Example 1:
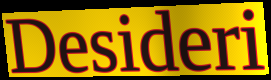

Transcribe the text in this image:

Desideri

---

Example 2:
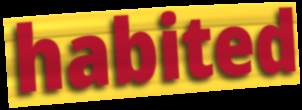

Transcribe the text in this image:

habited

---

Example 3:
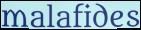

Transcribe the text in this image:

malafides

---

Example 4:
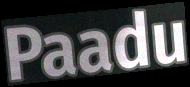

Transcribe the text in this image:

Paadu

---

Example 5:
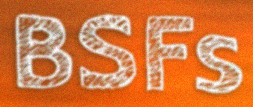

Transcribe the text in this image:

BSFs